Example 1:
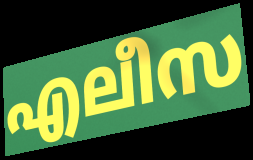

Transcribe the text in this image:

എലീസ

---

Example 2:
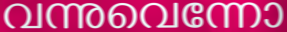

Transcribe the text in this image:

വന്നുവെന്നോ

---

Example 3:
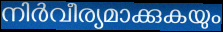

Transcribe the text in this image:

നിർവീര്യമാക്കുകയും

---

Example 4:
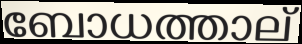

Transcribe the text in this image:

ബോധത്താല്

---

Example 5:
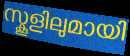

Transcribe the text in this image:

സ്കൂളിലുമായി